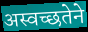
अस्वच्छतेने